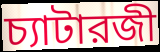
চ্যাটারজী